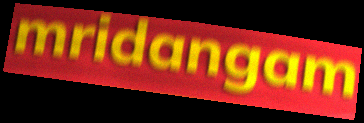
mridangam